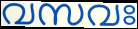
വസവഃ